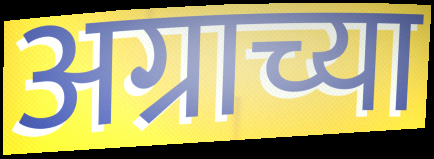
अग्राच्या